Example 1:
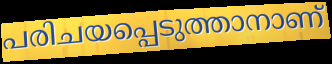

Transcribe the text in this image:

പരിചയപ്പെടുത്താനാണ്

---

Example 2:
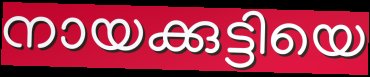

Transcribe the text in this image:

നായക്കുട്ടിയെ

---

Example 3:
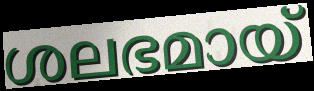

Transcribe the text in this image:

ശലഭമായ്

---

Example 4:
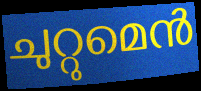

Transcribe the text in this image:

ചുറ്റുമെൻ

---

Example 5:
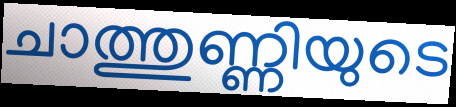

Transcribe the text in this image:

ചാത്തുണ്ണിയുടെ